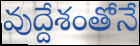
వుద్దేశంతోనే